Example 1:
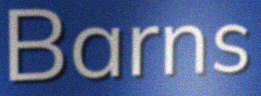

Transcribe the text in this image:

Barns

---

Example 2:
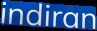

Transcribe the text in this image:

indiran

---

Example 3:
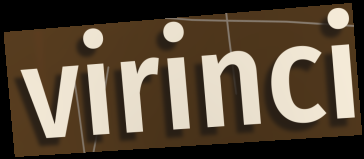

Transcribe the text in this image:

virinci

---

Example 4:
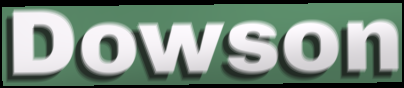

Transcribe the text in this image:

Dowson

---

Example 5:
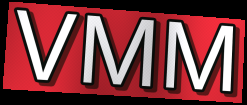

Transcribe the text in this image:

VMM